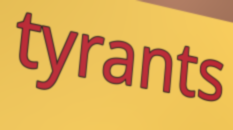
tyrants